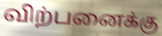
விற்பனைக்கு